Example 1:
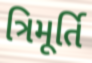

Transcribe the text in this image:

ત્રિમૂર્તિ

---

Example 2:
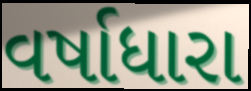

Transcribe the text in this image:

વર્ષાધારા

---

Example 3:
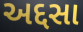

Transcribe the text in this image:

અદ્દસા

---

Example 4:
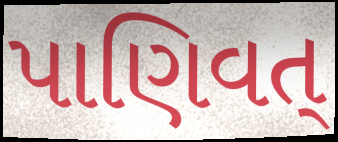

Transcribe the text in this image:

પાણિવત્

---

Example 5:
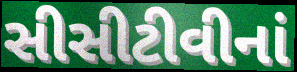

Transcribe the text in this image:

સીસીટીવીનાં